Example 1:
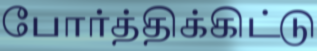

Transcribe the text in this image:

போர்த்திக்கிட்டு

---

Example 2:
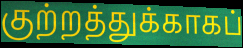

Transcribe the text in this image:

குற்றத்துக்காகப்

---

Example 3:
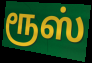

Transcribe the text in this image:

ரூஸ்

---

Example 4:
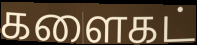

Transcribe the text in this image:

களைகட்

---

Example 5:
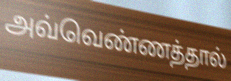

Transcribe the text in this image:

அவ்வெண்ணத்தால்